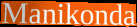
Manikonda